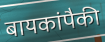
बायकांपैकी